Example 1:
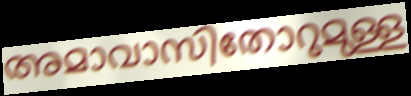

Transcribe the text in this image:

അമാവാസിതോറുമുള്ള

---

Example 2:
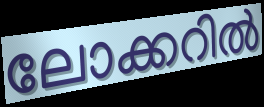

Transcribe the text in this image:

ലോക്കറിൽ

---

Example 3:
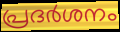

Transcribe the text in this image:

പ്രദർശനം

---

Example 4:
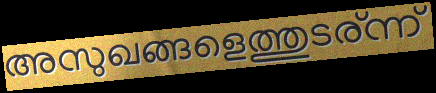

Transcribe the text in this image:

അസുഖങ്ങളെത്തുടര്ന്ന്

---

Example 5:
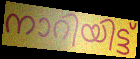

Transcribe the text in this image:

നാറിയിട്ട്